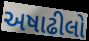
અષાઢીલો